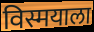
विस्मयाला